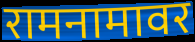
रामनामावर